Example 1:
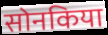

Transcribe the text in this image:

सोनकिया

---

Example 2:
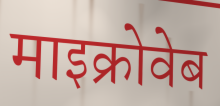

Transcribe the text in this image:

माइक्रोवेब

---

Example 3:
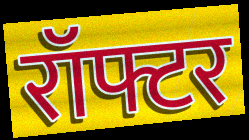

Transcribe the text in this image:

रॉफ्टर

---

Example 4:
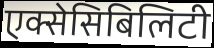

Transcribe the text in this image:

एक्सेसिबिलिटी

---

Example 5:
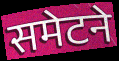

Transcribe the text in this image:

समेटने